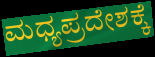
ಮಧ್ಯಪ್ರದೇಶಕ್ಕೆ